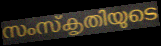
സംസ്‌കൃതിയുടെ